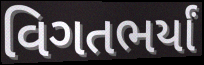
વિગતભર્યાં